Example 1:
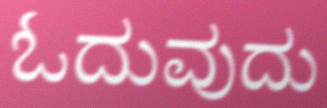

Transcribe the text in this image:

ಓದುವುದು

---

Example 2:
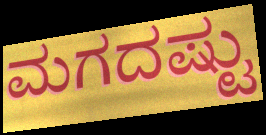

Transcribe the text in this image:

ಮಗದಷ್ಟು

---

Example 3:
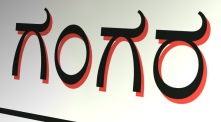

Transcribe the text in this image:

ಗಂಗರ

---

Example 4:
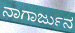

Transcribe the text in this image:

ನಾಗಾರ್ಜುನ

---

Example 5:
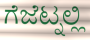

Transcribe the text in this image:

ಗೆಜೆಟ್ನಲ್ಲಿ